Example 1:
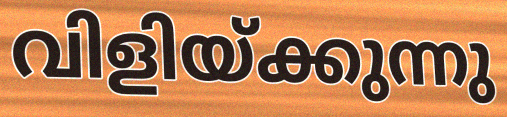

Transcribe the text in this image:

വിളിയ്ക്കുന്നു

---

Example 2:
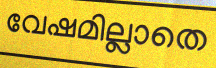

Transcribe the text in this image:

വേഷമില്ലാതെ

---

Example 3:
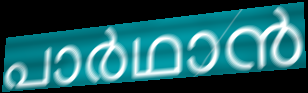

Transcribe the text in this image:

പാർഥാൻ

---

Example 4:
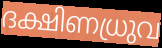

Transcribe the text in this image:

ദക്ഷിണധ്രുവ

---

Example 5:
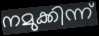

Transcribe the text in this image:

നമുക്കിന്ന്